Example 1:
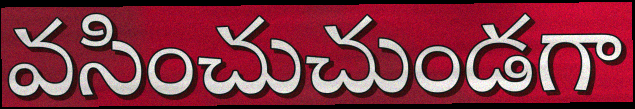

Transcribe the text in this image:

వసించుచుండగా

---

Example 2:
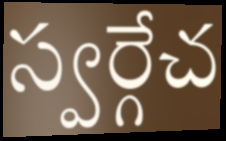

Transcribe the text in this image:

స్వర్గేచ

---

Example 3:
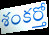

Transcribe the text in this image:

శంకర్తో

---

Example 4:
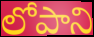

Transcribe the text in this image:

లోపాని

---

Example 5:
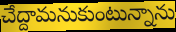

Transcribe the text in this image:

చేద్దామనుకుంటున్నాను